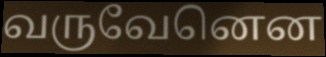
வருவேனென